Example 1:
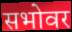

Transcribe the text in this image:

सभोवर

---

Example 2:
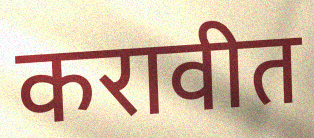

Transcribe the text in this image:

करावीत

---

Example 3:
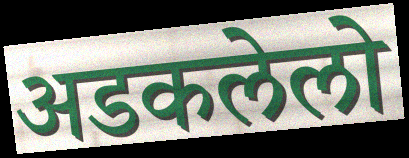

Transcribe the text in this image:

अडकलेलो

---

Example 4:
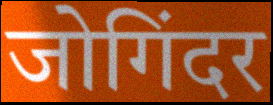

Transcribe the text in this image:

जोगिंदर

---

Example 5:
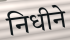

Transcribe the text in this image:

निधीने